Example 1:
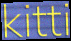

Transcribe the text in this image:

kitti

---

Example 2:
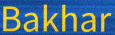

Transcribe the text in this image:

Bakhar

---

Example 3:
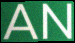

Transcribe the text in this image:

AN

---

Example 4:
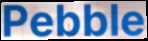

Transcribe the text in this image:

Pebble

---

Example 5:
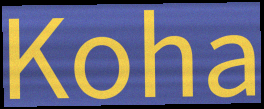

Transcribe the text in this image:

Koha